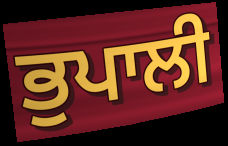
ਭੁਪਾਲੀ